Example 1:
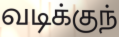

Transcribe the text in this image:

வடிக்குந்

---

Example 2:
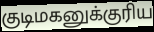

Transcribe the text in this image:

குடிமகனுக்குரிய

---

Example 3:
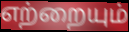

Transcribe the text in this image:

எற்றையும்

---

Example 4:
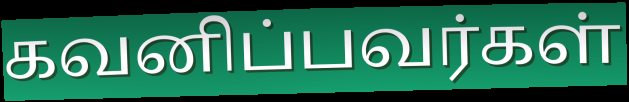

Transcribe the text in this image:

கவனிப்பவர்கள்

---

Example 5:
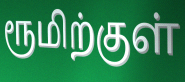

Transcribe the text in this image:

ரூமிற்குள்